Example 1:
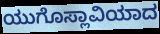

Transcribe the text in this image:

ಯುಗೊಸ್ಲಾವಿಯಾದ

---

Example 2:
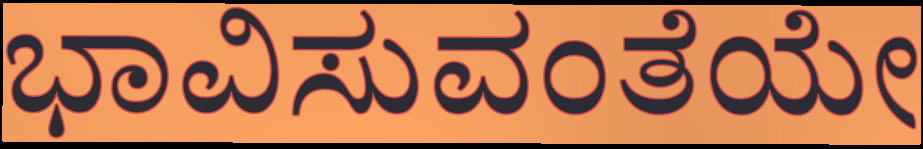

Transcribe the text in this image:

ಭಾವಿಸುವಂತೆಯೇ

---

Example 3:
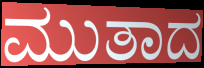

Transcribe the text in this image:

ಮುತಾದ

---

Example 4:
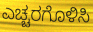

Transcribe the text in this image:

ಎಚ್ಚರಗೊಳಿಸಿ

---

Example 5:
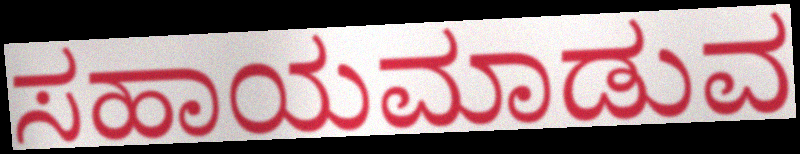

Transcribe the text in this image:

ಸಹಾಯಮಾಡುವ